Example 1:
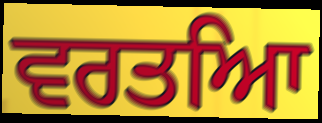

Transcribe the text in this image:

ਵਰਤਆਿ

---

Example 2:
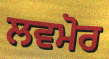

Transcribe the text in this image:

ਲਵਮੋਰ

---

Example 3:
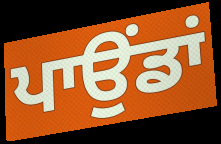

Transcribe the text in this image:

ਪਾਉਂਡਾਂ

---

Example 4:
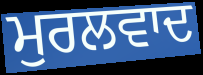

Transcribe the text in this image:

ਮੁਰਲਵਾਦ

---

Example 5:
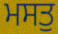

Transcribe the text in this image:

ਮਸਤੁ